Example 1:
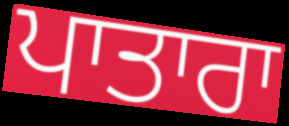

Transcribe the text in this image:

ਪਾਤਾਰਾ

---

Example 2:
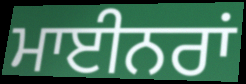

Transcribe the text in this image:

ਮਾਈਨਰਾਂ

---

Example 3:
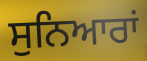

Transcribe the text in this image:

ਸੁਨਿਆਰਾਂ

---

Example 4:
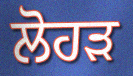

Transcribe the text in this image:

ਲੋਹੜ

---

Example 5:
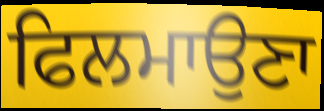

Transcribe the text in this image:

ਫਿਲਮਾਉਣਾ